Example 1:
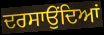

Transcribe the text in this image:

ਦਰਸਾਉਂਦਿਆਂ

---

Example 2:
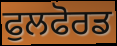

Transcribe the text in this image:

ਫੁਲਫੋਰਡ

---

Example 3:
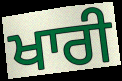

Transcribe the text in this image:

ਖਾਰੀ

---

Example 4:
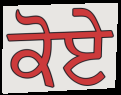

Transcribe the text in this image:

ਕੋਏ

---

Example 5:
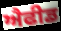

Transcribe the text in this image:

ਐਫੀਡ